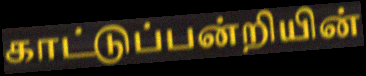
காட்டுப்பன்றியின்